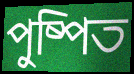
পুষ্পিত